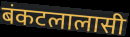
बंकटलालासी